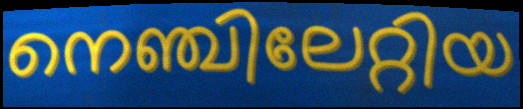
നെഞ്ചിലേറ്റിയ